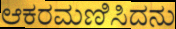
ಆಕರಮಣಿಸಿದನು